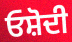
ਓਸ਼ੋਦੀ